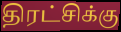
திரட்சிக்கு